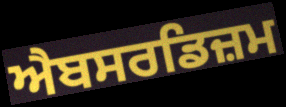
ਐਬਸਰਡਿਜ਼ਮ